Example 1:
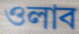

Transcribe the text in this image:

ওলাব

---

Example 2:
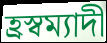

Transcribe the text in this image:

হ্ৰস্বম্যাদী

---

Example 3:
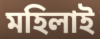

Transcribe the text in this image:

মহিলাই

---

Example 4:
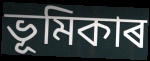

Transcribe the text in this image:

ভূমিকাৰ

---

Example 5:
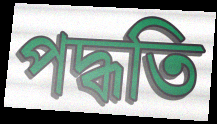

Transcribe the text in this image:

পদ্ধতি